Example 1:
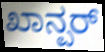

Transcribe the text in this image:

ಖಾನ್ಪರ್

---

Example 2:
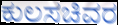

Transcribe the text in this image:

ಕುಲಸಚಿವರ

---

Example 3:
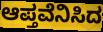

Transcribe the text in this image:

ಆಪ್ತವೆನಿಸಿದ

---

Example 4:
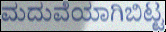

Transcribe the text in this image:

ಮದುವೆಯಾಗಿಬಿಟ್ಟ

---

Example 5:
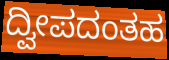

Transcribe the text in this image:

ದ್ವೀಪದಂತಹ